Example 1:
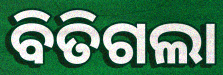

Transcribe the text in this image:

ବିତିଗଲା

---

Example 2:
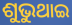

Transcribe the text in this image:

ଶୁଭୁଥାଇ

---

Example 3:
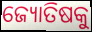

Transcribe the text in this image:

ଜ୍ୟୋତିଷକୁ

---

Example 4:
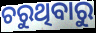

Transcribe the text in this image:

ଚରୁଥିବାରୁ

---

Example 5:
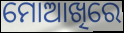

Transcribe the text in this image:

ମୋଆଖିରେ